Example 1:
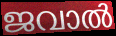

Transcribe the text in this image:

ജവാൽ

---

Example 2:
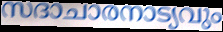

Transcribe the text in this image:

സദാചാരനാട്യവും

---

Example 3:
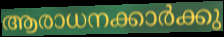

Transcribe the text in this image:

ആരാധനക്കാർക്കു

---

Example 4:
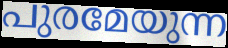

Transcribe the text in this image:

പുരമേയുന്ന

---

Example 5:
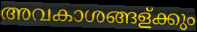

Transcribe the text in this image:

അവകാശങ്ങള്ക്കും